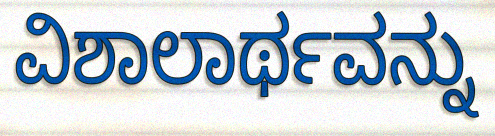
ವಿಶಾಲಾರ್ಥವನ್ನು